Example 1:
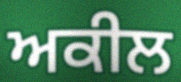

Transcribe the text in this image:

ਅਕੀਲ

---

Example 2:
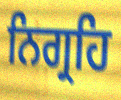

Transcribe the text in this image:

ਨਿਗ੍ਰਹਿ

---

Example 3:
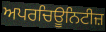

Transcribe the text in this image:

ਅਪਰਚਿਊਨਿਟੀਜ਼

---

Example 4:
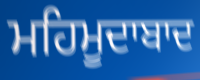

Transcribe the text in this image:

ਮਹਿਮੂਦਾਬਾਦ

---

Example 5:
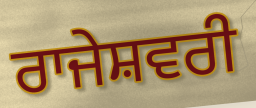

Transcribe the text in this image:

ਰਾਜੇਸ਼ਵਰੀ